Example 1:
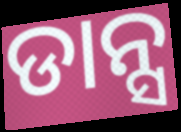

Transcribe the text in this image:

ଡାନ୍ସ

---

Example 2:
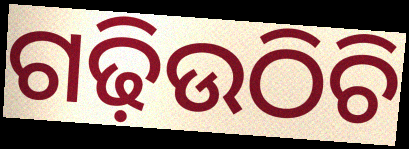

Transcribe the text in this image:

ଗଢ଼ିଉଠିଚି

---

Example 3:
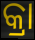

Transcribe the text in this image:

କ୍ରା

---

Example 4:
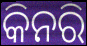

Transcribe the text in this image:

କିନରି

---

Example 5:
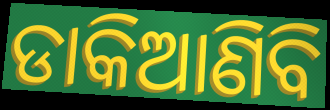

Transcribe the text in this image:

ଡାକିଆଣିବି